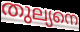
തുല്യനെ